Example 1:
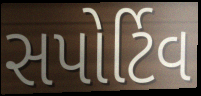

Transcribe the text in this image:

સપોર્ટિવ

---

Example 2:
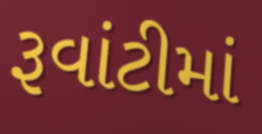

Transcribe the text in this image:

રૂવાંટીમાં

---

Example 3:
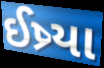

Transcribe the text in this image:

ઈષ્ર્યા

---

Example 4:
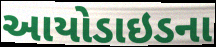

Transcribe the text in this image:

આયોડાઇડના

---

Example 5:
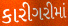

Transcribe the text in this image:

કારીગરીમાં